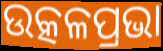
ଉତ୍କଳପ୍ରଭା